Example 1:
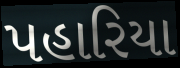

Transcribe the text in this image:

પહારિયા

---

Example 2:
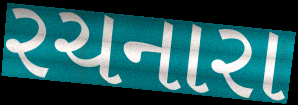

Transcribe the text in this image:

રચનારા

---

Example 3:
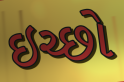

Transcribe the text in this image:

ઇચ્છો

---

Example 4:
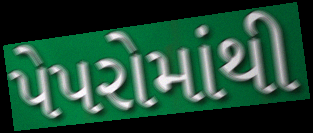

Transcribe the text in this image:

પેપરોમાંથી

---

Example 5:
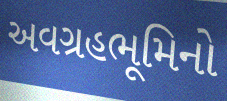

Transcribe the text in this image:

અવગ્રહભૂમિનો